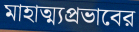
মাহাত্ম্যপ্রভাবের